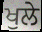
ਖੁਲੇ